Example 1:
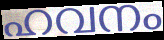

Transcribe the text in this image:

ഹവനം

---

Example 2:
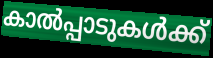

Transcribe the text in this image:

കാൽപ്പാടുകൾക്ക്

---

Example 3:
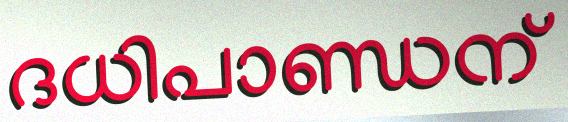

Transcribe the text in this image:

ദധിപാണ്ഡന്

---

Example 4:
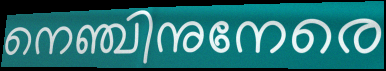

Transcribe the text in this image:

നെഞ്ചിനുനേരെ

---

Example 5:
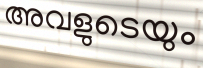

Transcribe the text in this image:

അവളുടെയും